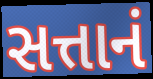
સત્તાનં